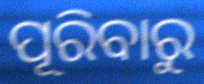
ପୂରିବାରୁ